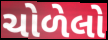
ચોળેલો